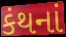
કંથનાં